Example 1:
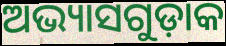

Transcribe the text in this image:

ଅଭ୍ୟାସଗୁଡ଼ାକ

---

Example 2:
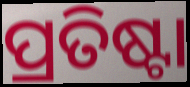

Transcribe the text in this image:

ପ୍ରତିଷ୍ଟା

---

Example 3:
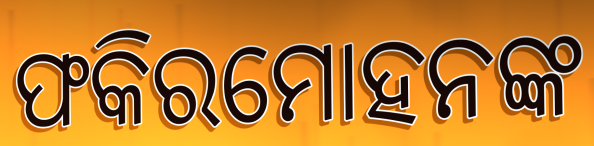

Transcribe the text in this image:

ଫକିରମୋହନଙ୍କ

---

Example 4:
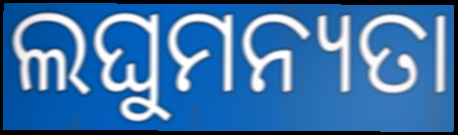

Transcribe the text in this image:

ଲଘୁମନ୍ୟତା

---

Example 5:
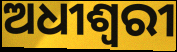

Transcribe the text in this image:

ଅଧୀଶ୍ୱରୀ